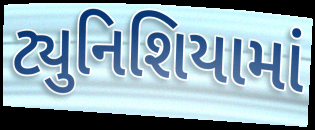
ટ્યુનિશિયામાં